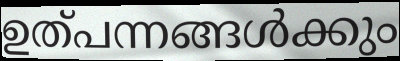
ഉത്പന്നങ്ങൾക്കും